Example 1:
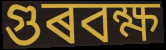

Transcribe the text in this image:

গুৰবক্ষ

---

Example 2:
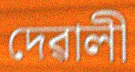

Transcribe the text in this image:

দেৱালী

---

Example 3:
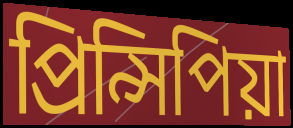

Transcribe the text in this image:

প্ৰিন্সিপিয়া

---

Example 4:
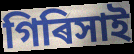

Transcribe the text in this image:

গিৰিসাই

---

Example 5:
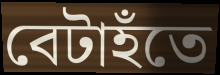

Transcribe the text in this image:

বেটাহঁতে